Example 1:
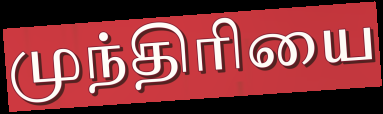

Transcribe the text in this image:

முந்திரியை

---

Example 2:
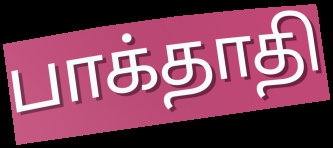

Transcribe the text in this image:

பாக்தாதி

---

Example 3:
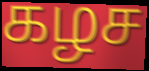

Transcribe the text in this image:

கழச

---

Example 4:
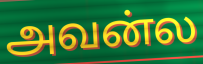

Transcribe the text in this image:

அவன்ல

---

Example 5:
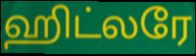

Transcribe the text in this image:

ஹிட்லரே